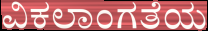
ವಿಕಲಾಂಗತೆಯ